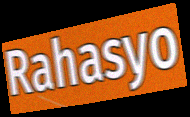
Rahasyo